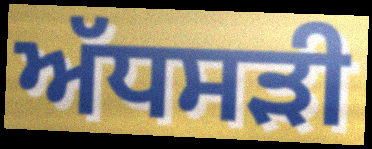
ਅੱਧਸੜੀ